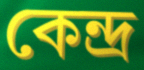
কেন্দ্র